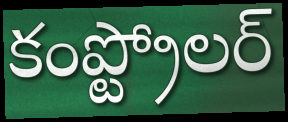
కంప్ట్రోలర్